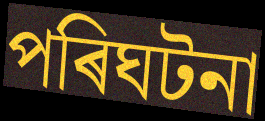
পৰিঘটনা